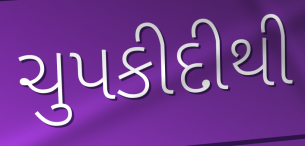
ચુપકીદીથી